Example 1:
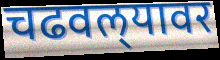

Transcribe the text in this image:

चढवल्यावर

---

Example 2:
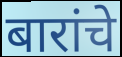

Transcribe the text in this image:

बारांचे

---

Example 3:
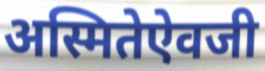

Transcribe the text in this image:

अस्मितेऐवजी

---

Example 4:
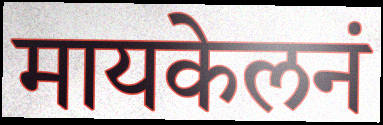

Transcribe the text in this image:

मायकेलनं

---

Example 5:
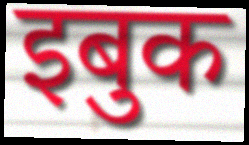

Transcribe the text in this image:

इबुक